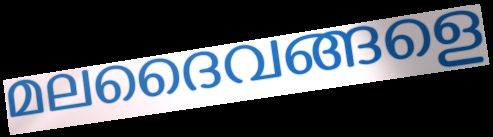
മലദൈവങ്ങളെ